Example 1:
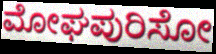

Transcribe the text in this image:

ಮೋಘಪುರಿಸೋ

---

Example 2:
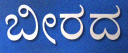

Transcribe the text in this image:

ಬೀರದ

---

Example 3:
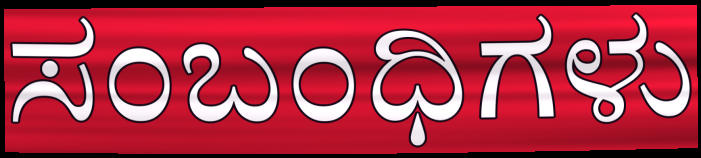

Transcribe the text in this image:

ಸಂಬಂಧಿಗಳು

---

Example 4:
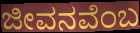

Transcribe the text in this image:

ಜೀವನವೆಂಬ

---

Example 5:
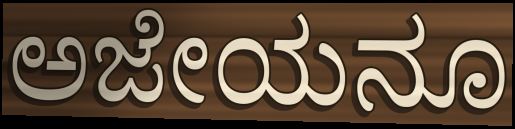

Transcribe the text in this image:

ಅಜೇಯನೂ